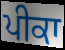
ਪੀਕਾ